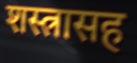
शस्त्रासह